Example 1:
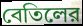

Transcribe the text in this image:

বেতিলের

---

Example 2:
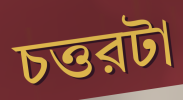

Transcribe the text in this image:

চত্তরটা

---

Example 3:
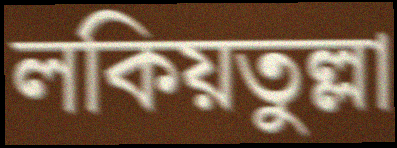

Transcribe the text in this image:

লকিয়তুল্লা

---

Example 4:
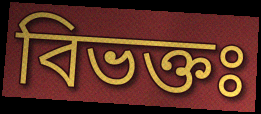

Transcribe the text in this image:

বিভক্তঃ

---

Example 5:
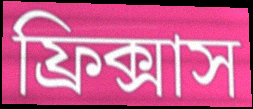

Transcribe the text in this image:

ফ্রিক্সাস